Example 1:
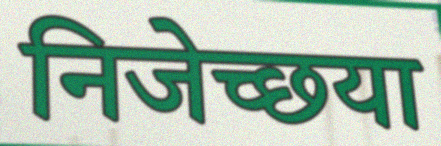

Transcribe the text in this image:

निजेच्छया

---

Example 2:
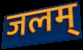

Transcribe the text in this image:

जलम्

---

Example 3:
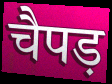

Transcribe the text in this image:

चैपड़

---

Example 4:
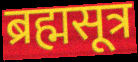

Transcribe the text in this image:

ब्रह्मसूत्र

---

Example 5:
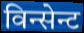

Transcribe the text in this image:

विन्सेन्ट